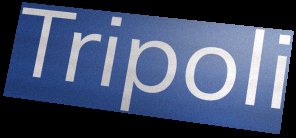
Tripoli